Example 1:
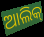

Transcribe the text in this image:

ଆଲିକ୍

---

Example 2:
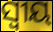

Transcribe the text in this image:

ସ୍ବୀୟ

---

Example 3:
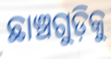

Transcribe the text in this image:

ଛାଞ୍ଚଗୁଡ଼ିକୁ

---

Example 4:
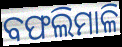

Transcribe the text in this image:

ବଫଲିମାଳି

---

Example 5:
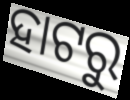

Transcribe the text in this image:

ହାଟରୁ